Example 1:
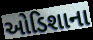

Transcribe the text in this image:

ઓડિશાના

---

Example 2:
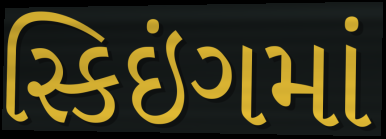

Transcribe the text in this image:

સ્કિઇંગમાં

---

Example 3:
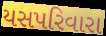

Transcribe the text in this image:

યસપરિવારા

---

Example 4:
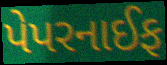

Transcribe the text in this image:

પેપરનાઈફ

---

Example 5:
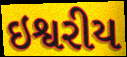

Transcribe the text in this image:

ઇશ્વરીય